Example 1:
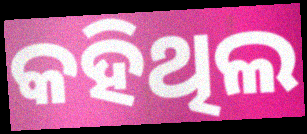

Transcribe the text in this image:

କହିଥିଲ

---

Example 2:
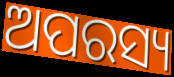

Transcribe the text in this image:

ଅପରସ୍ୟ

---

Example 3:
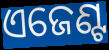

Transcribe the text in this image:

ଏଜେଣ୍ଟ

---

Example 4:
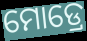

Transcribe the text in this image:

ମୋଡ୍ରେ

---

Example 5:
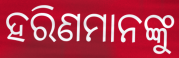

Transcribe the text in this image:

ହରିଣମାନଙ୍କୁ